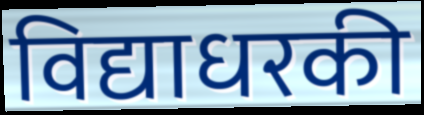
विद्याधरकी